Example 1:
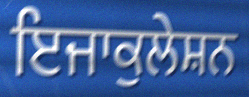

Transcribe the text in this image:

ਇਜਾਕੁਲੇਸ਼ਨ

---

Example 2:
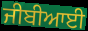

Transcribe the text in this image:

ਜੀਬੀਆਈ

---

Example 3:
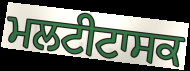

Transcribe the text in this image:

ਮਲਟੀਟਾਸਕ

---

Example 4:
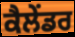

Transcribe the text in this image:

ਕੈਲੇਂਡਰ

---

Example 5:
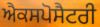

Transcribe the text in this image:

ਐਕਸਪੋਸੈਟਰੀ